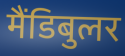
मैंडिबुलर